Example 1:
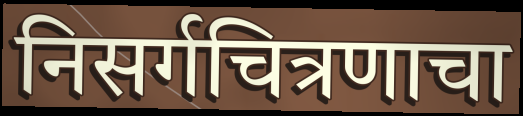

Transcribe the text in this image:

निसर्गचित्रणाचा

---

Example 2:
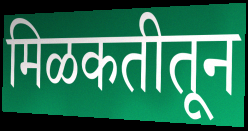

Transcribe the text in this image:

मिळकतीतून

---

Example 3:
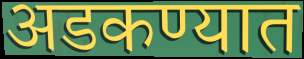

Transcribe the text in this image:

अडकण्यात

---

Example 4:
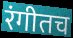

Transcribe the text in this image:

रंगीतच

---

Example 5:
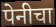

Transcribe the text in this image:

पेनीचा